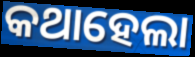
କଥାହେଲା